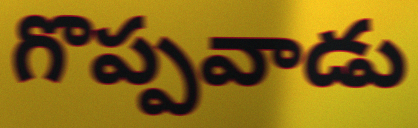
గొప్పవాడు